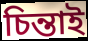
চিন্তাই